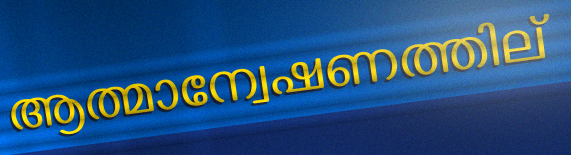
ആത്മാന്വേഷണത്തില്